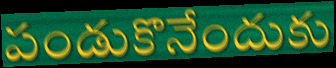
పండుకొనేందుకు